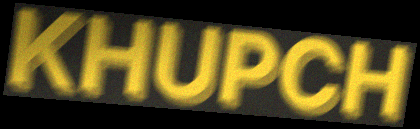
KHUPCH